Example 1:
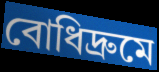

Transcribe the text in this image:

বোধিদ্রুমে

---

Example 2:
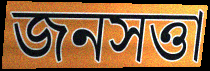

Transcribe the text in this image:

জনসত্তা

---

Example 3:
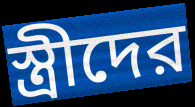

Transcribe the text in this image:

স্ত্রীদের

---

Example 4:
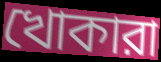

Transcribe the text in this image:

খোকারা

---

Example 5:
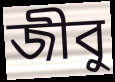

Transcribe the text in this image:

জীবু